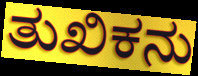
ತುಖಿಕನು